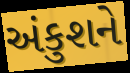
અંકુશને